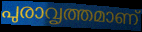
പുരാവൃത്തമാണ്